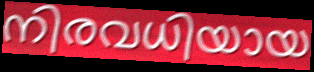
നിരവധിയായ